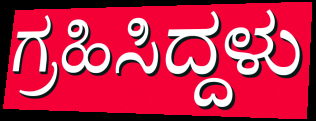
ಗ್ರಹಿಸಿದ್ದಳು